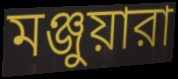
মঞ্জুয়ারা